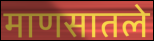
माणसातले